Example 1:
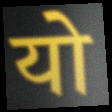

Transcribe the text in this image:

यो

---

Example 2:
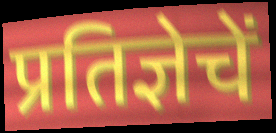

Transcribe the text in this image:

प्रतिज्ञेचें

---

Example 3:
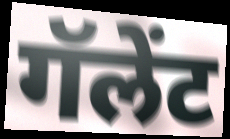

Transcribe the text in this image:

गॅलेंट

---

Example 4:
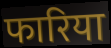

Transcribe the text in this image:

फारिया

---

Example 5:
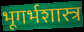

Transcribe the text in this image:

भूगर्भशास्त्र